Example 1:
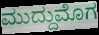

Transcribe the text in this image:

ಮುದ್ದುಮೊಗ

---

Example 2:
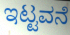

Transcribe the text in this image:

ಇಟ್ಟವನೆ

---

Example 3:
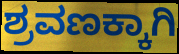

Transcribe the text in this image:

ಶ್ರವಣಕ್ಕಾಗಿ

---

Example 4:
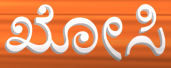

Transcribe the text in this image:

ಖೋಸಿ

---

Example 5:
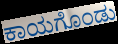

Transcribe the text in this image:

ಕಾಯಗೊಂಡು